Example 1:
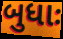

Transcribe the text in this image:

બુધાઃ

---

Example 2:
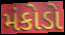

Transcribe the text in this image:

મંકોડો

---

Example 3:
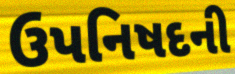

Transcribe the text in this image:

ઉપનિષદની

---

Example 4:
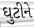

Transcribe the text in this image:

ઘુટીને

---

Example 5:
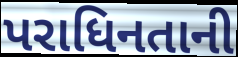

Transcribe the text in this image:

પરાધિનતાની